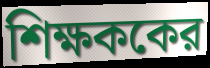
শিক্ষককের